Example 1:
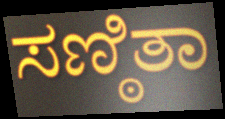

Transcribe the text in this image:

ಸಣ್ಠಿತಾ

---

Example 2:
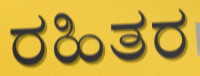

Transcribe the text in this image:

ರಹಿತರ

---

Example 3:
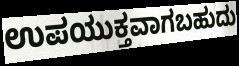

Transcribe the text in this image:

ಉಪಯುಕ್ತವಾಗಬಹುದು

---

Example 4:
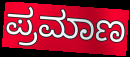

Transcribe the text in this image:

ಪ್ರಮಾಣ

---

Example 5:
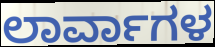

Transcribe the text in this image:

ಲಾರ್ವಾಗಳ